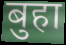
बुहा